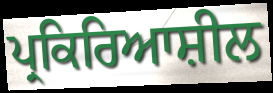
ਪ੍ਰਕਿਰਿਆਸ਼ੀਲ